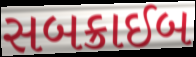
સબક્રાઈબ